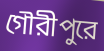
গৌরীপুরে